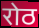
रोठ